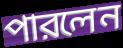
পারলেন